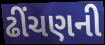
ઢીંચણની